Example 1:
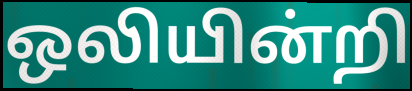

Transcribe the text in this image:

ஒலியின்றி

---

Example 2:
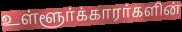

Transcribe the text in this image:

உள்ளூர்க்காரர்களின்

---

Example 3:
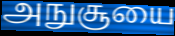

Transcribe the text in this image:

அநுசூயை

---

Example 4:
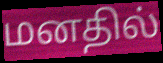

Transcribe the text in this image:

மனதில்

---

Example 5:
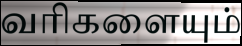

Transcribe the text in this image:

வரிகளையும்